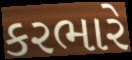
કરભારે